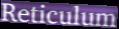
Reticulum